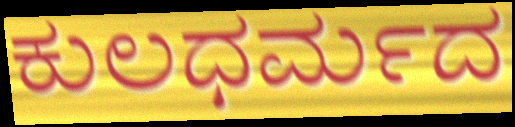
ಕುಲಧರ್ಮದ